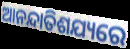
ଆନନ୍ଦାତିଶଯ୍ୟରେ